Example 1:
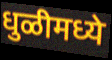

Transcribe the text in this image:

धुळीमध्ये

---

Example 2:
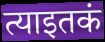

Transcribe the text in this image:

त्याइतकं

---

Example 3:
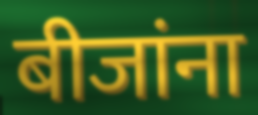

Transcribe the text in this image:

बीजांना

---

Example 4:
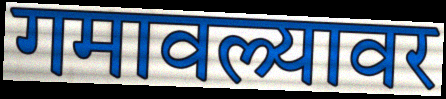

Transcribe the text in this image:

गमावल्यावर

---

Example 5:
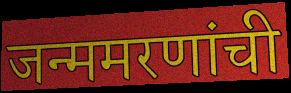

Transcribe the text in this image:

जन्ममरणांची